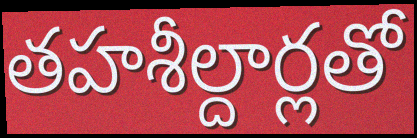
తహశీల్దార్లతో